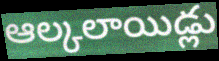
ఆల్కలాయిడ్లు